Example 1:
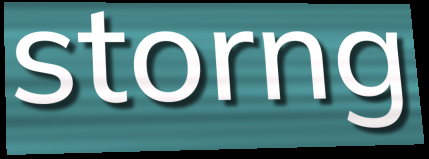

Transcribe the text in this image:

storng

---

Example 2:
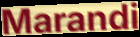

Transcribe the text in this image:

Marandi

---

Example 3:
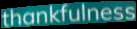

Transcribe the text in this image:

thankfulness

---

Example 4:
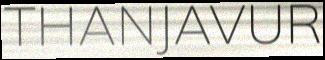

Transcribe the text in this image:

THANJAVUR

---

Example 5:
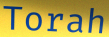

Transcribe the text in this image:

Torah